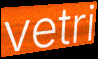
vetri